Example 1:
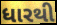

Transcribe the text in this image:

ધારથી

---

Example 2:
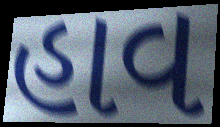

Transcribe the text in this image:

હાવ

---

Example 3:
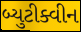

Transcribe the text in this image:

બ્યુટીક્વીન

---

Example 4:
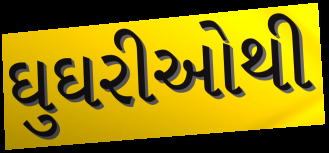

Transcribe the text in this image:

ઘુઘરીઓથી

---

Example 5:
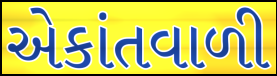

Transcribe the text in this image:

એકાંતવાળી